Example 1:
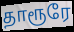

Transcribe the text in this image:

தாரூரே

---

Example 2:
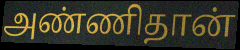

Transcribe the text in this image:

அண்ணிதான்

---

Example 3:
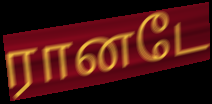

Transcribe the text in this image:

ரானடே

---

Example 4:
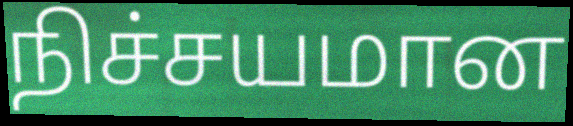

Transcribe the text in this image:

நிச்சயமான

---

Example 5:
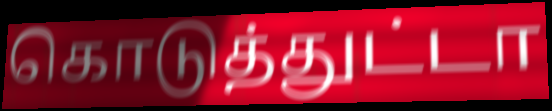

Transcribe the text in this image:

கொடுத்துட்டா